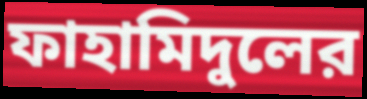
ফাহামিদুলের